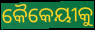
କୈକେୟୀକୁ